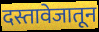
दस्तावेजातून